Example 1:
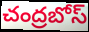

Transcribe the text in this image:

చంద్రబోస్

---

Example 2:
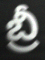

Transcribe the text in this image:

బ్రీ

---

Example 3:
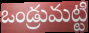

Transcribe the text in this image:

ఒండ్రుమట్టి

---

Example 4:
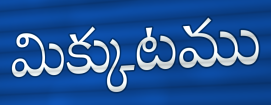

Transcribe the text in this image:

మిక్కుటము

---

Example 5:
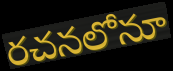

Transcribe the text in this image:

రచనలోనూ